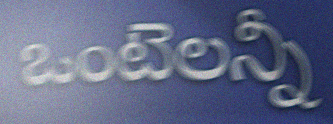
ఒంటెలన్నీ